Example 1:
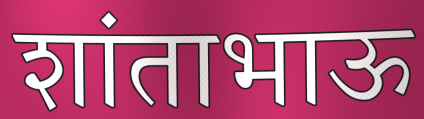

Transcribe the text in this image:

शांताभाऊ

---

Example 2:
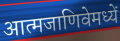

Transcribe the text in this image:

आत्मजाणिवेमध्यें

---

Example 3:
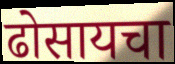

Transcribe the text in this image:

ढोसायचा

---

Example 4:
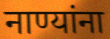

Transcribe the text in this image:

नाण्यांना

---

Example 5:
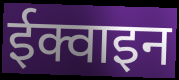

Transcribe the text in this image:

ईक्वाइन